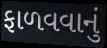
ફાળવવાનું